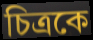
চিত্রকে